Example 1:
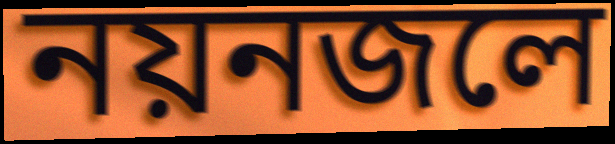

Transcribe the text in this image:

নয়নজলে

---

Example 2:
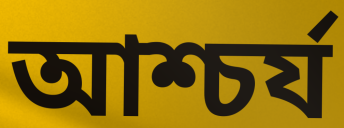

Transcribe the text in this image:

আশ্চর্য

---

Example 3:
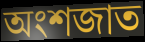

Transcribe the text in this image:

অংশজাত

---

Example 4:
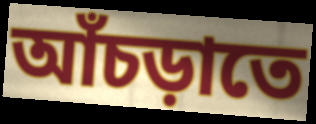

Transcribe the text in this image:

আঁচড়াতে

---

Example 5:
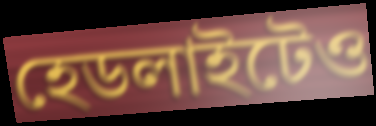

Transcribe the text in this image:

হেডলাইটেও